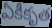
ఏకీకృత